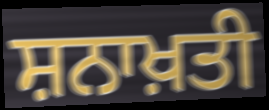
ਸ਼ਨਾਖ਼ਤੀ